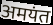
अमयंत